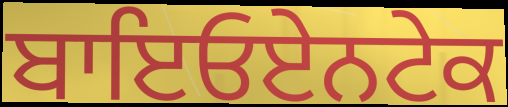
ਬਾਇਓਏਨਟੇਕ